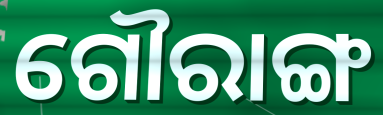
ଗୌରାଙ୍ଗ